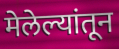
मेलेल्यांतून